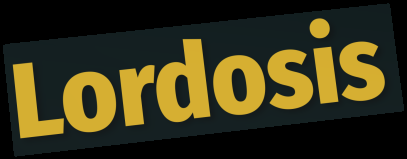
Lordosis